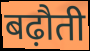
बढ़ौती